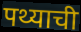
पथ्याची